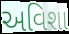
અવિશા